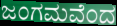
ಜಂಗಮವೆಂದ